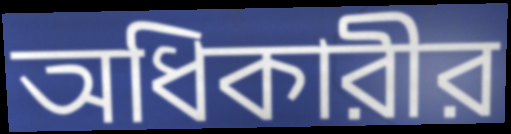
অধিকারীর